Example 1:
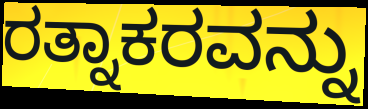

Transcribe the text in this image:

ರತ್ನಾಕರವನ್ನು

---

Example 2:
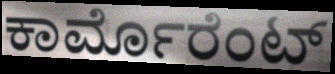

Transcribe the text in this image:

ಕಾರ್ಮೊರೆಂಟ್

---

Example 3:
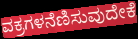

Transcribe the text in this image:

ವಕ್ರಗಳನೆಣಿಸುವುದೇಕೆ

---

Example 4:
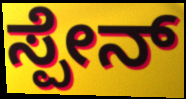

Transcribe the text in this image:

ಸ್ಪೇನ್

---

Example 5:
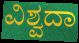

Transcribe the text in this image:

ವಿಶ್ವದಾ